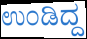
ಉಂಡಿದ್ದ